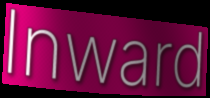
Inward